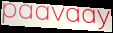
paavaay